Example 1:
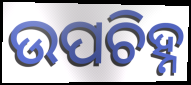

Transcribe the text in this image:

ଉପଚିହ୍ନ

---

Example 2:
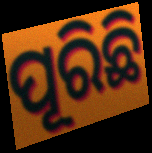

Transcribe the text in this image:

ପୂରିଛି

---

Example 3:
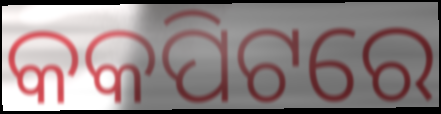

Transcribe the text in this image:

କକପିଟରେ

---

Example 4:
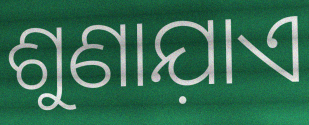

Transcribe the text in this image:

ଶୁଣାଯ଼ାଏ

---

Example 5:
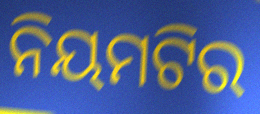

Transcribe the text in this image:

ନିୟମଟିର